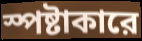
স্পষ্টাকারে